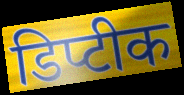
डिप्टीक